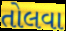
તોલવા